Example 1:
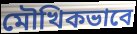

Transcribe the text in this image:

মৌখিকভাবে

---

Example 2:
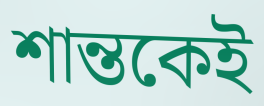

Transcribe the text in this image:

শান্তকেই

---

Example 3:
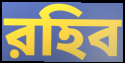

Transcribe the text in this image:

রহিব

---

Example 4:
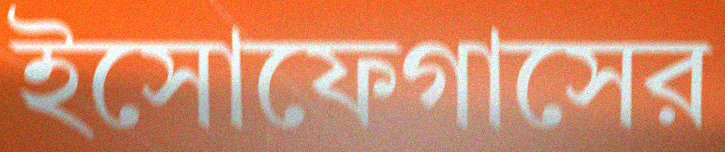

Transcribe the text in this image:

ইসোফেগাসের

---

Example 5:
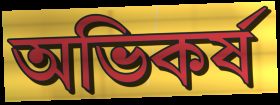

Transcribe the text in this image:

অভিকর্ষ